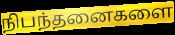
நிபந்தனைகளை